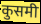
कुसमी